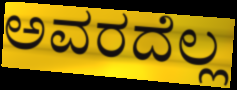
ಅವರದೆಲ್ಲ